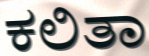
ಕಲಿತಾ